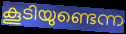
കൂടിയുണ്ടെന്ന